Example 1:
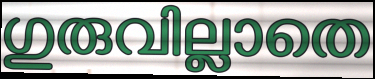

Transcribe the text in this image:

ഗുരുവില്ലാതെ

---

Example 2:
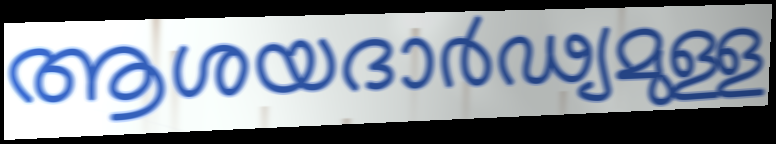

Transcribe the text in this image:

ആശയദാർഢ്യമുള്ള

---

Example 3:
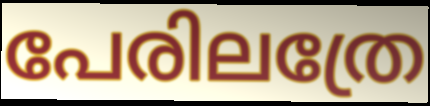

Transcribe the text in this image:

പേരിലത്രേ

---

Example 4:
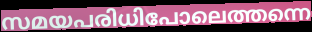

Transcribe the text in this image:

സമയപരിധിപോലെത്തന്നെ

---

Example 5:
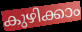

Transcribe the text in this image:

കുഴിക്കാം